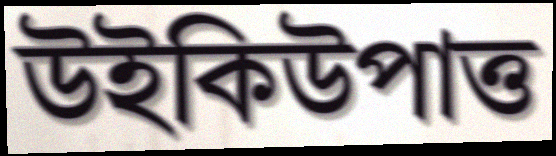
উইকিউপাত্ত